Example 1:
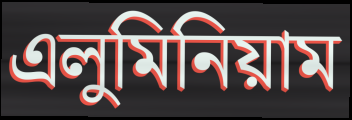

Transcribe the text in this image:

এলুমিনিয়াম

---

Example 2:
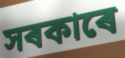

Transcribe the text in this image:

সৰকাৰে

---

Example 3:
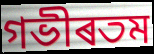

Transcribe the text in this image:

গভীৰতম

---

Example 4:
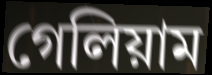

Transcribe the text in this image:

গেলিয়াম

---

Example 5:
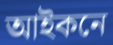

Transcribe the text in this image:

আইকনে